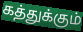
கத்துக்கும்